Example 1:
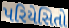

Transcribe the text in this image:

પરિયેસિતો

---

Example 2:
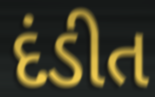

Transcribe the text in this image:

દંડીત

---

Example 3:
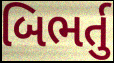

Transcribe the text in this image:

બિભર્તુ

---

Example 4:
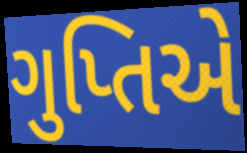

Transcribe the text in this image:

ગુપ્તિએ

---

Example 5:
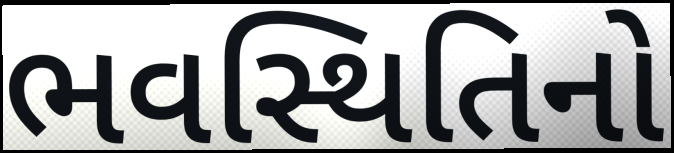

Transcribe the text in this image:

ભવસ્થિતિનો